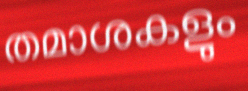
തമാശകളും